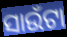
ସାଉଁଟା